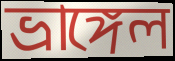
ভ্রাঙ্গেল